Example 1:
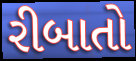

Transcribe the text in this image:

રીબાતો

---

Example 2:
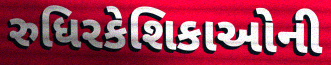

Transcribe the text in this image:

રુધિરકેશિકાઓની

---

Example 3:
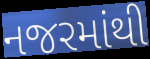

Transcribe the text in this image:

નજરમાંથી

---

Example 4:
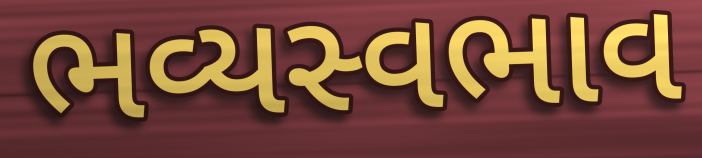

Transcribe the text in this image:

ભવ્યસ્વભાવ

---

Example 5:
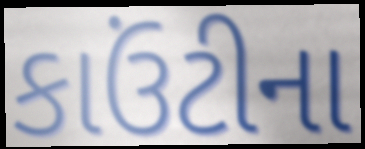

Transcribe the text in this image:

કાઉંટીના